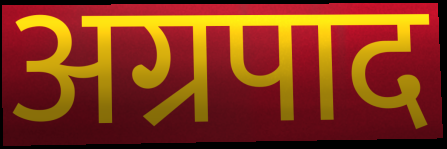
अग्रपाद